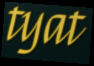
tyat